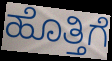
ಹೊತ್ತಿಗೆ